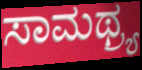
ಸಾಮಥ್ರ್ಯ